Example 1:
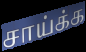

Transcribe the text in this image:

சாய்க்க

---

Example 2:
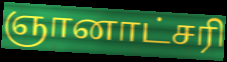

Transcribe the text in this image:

ஞானாட்சரி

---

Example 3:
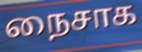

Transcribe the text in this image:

நைசாக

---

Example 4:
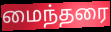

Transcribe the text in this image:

மைந்தரை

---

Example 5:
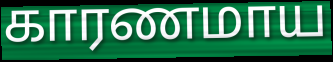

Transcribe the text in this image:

காரணமாய